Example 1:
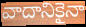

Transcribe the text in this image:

వాదానికైనా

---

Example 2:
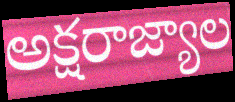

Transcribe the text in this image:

అక్షరాజ్యాల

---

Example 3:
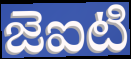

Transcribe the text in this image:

జెఐటి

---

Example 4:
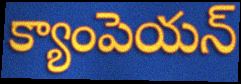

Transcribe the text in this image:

క్యాంపెయన్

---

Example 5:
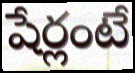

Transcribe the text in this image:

షేర్లంటే